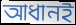
আধানই